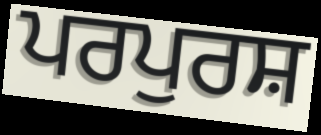
ਪਰਪੁਰਸ਼